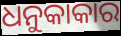
ଧନୁକାକାର